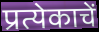
प्रत्येकाचें